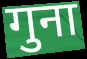
गुना